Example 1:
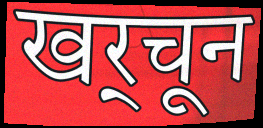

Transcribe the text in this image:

खर्चून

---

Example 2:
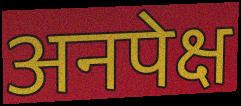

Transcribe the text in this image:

अनपेक्ष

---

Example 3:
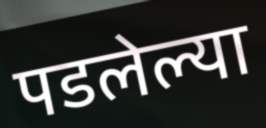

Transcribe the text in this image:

पडलेल्या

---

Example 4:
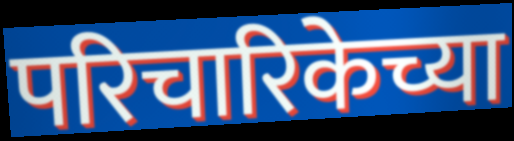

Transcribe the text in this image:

परिचारिकेच्या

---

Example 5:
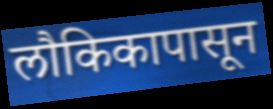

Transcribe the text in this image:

लौकिकापासून